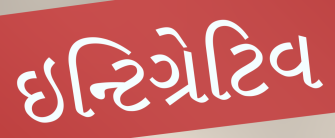
ઇન્ટિગ્રેટિવ